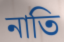
নাতি